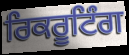
ਰਿਕਰੂਟਿੰਗ